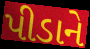
પીડાને